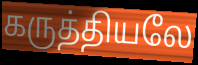
கருத்தியலே